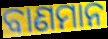
ବାଣମାନ